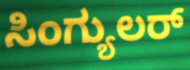
ಸಿಂಗ್ಯುಲರ್